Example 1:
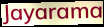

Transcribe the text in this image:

Jayarama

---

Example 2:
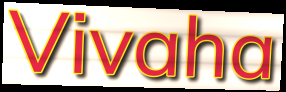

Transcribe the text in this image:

Vivaha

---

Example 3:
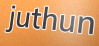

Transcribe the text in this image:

juthun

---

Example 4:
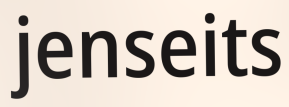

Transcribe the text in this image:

jenseits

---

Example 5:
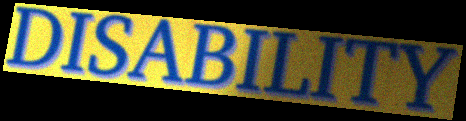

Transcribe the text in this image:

DISABILITY